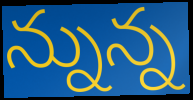
న్నున్న